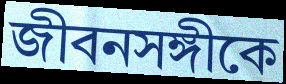
জীবনসঙ্গীকে